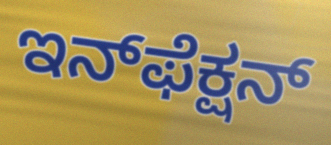
ಇನ್‌ಫೆಕ್ಷನ್